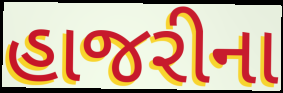
હાજરીના